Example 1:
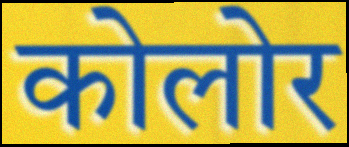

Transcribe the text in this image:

कोलोर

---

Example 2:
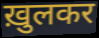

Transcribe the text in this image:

ख़ुलकर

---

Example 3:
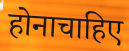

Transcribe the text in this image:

होनाचाहिए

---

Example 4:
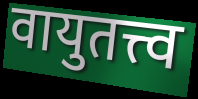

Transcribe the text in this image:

वायुतत्त्व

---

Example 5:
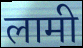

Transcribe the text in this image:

लामी